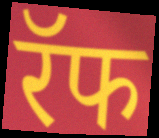
रॅफ